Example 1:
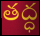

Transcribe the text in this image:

తద్ధ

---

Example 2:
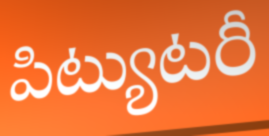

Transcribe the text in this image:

పిట్యుటరీ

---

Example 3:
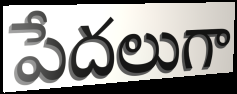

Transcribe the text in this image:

పేదలుగా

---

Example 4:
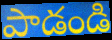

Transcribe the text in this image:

పాడండి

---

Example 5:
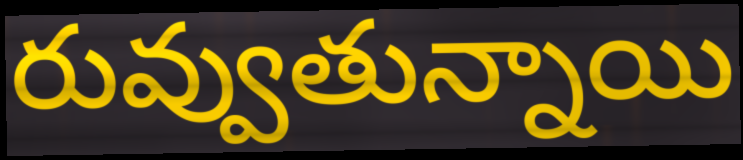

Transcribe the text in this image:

రువ్వుతున్నాయి